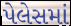
પેલેસમાં